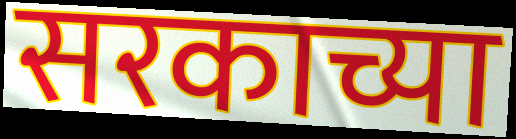
सरकाच्या